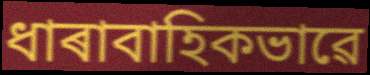
ধাৰাবাহিকভাৱে